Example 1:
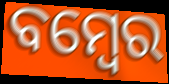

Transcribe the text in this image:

ବମ୍ବେର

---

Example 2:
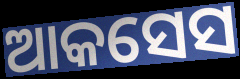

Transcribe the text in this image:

ଆକସେସ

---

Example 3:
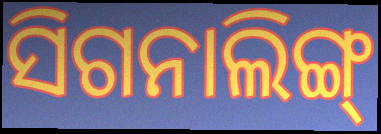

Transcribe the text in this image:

ସିଗନାଲିଙ୍ଗ୍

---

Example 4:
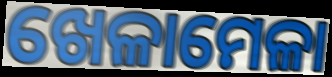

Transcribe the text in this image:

ଖେଳାମେଳା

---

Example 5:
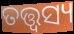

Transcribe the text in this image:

ତତ୍ତ୍ୱସ୍ୟ